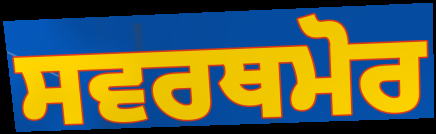
ਸਵਰਥਮੋਰ